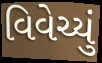
વિવેચ્યું